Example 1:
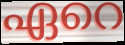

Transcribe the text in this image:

ഏറെ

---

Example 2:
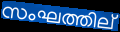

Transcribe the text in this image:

സംഘത്തില്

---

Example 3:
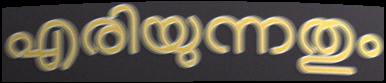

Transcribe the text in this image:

എരിയുന്നതും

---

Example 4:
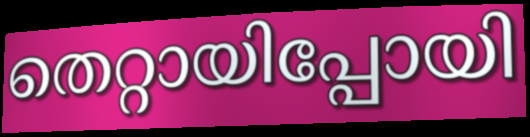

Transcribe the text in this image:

തെറ്റായിപ്പോയി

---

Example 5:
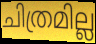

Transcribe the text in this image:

ചിത്രമില്ല